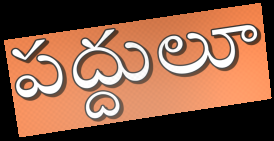
పద్దులూ